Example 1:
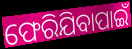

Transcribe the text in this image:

ଫେରିଯିବାପାଇଁ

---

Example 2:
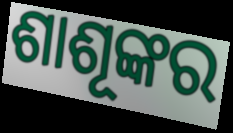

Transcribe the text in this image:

ଶାଶୂଙ୍କର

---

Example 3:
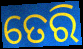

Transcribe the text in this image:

ତେରି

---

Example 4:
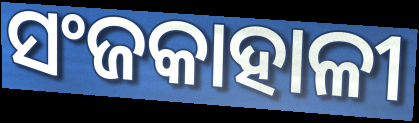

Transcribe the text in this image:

ସଂଜକାହାଳୀ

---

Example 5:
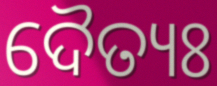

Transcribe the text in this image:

ଦୈତ୍ୟଃ